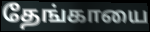
தேங்காயை